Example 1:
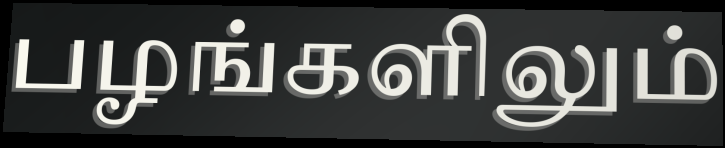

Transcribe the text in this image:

பழங்களிலும்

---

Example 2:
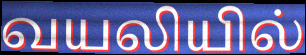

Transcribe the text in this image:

வயலியில்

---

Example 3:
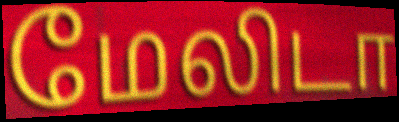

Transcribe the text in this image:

மேலிடா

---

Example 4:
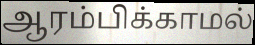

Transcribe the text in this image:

ஆரம்பிக்காமல்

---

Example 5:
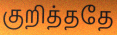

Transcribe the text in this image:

குறித்ததே